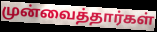
முன்வைத்தார்கள்